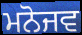
ਮਨੋਜਵ